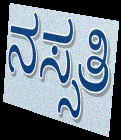
ನಸ್ಸತಿ